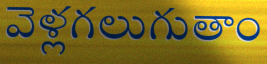
వెళ్లగలుగుతాం